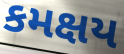
કમક્ષય